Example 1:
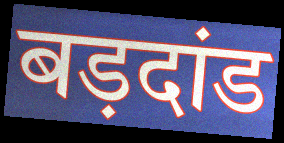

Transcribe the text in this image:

बड़दांड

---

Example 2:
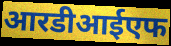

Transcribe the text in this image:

आरडीआईएफ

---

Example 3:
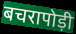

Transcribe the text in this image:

बचरापोड़ी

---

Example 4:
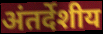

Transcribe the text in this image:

अंतर्देशीय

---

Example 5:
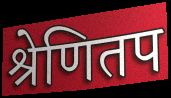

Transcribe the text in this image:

श्रेणितप